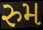
રુમ